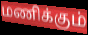
மணிக்கும்